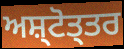
ਅਸ਼੍ਟੋਤ੍ਤਰ